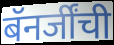
बॅनर्जींची